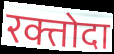
रक्तोदा